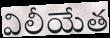
విలీయేత